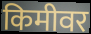
किमीवर